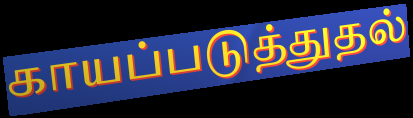
காயப்படுத்துதல்